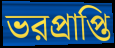
ভরপ্রাপ্তি